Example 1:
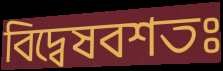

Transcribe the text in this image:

বিদ্বেষবশতঃ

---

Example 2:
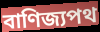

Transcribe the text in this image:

বাণিজ্যপথ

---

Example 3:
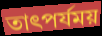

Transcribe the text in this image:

তাৎপর্যময়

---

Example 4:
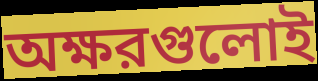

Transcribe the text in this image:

অক্ষরগুলোই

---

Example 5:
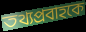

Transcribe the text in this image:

তথ্যপ্রবাহকে